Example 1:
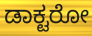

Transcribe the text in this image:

ಡಾಕ್ಟರೋ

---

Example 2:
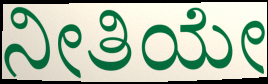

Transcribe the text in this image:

ನೀತಿಯೇ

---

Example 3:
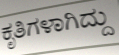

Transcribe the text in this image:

ಕೃತಿಗಳಾಗಿದ್ದು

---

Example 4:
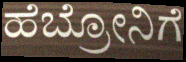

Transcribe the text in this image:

ಹೆಬ್ರೋನಿಗೆ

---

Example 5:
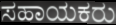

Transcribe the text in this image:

ಸಹಾಯಕರು